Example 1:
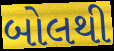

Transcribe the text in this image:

બોલથી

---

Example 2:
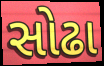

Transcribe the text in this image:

સોઢા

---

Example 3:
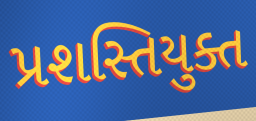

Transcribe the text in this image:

પ્રશસ્તિયુક્ત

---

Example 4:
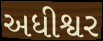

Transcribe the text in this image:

અધીશ્વર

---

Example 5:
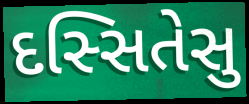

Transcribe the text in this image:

દસ્સિતેસુ